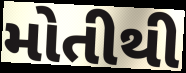
મોતીથી